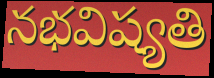
నభవిష్యతి